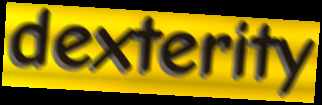
dexterity